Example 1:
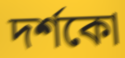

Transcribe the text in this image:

দৰ্শকো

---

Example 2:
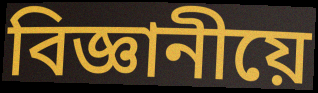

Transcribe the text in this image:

বিজ্ঞানীয়ে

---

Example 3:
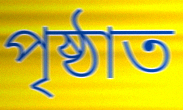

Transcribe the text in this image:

পৃষ্ঠাত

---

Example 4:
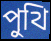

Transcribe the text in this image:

পুথি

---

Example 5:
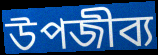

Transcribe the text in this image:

উপজীব্য